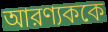
আরণ্যককে